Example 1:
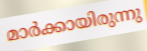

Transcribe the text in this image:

മാർക്കായിരുന്നു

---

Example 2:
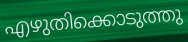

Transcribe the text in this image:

എഴുതിക്കൊടുത്തു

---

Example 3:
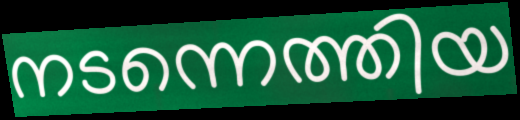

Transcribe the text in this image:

നടന്നെത്തിയ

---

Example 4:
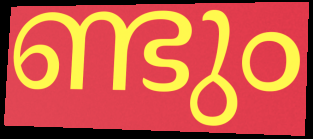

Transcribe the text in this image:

ണ്ടും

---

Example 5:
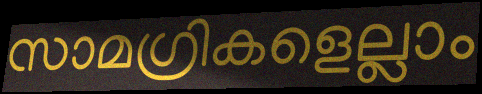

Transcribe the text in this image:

സാമഗ്രികളെല്ലാം